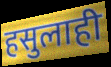
हसुलाही